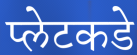
प्लेटकडे